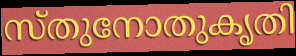
സ്തുനോതുകൃതി